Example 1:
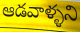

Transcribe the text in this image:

ఆడవాళ్ళని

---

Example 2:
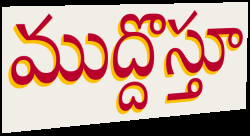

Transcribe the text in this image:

ముద్దొస్తూ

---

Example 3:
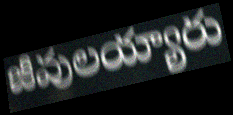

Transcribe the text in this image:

జీవులయ్యారు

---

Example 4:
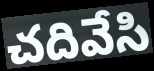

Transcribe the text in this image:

చదివేసి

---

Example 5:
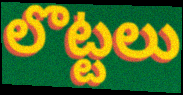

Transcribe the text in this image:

లొట్టలు